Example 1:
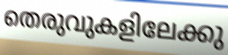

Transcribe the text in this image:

തെരുവുകളിലേക്കു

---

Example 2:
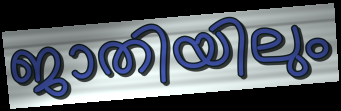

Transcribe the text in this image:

ജാതിയിലും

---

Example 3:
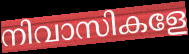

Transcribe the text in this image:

നിവാസികളേ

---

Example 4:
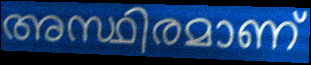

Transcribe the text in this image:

അസ്ഥിരമാണ്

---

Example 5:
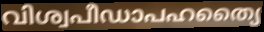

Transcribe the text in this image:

വിശ്വപീഡാപഹത്യൈ